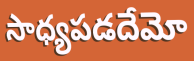
సాధ్యపడదేమో